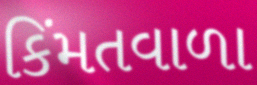
કિંમતવાળા